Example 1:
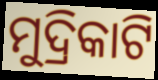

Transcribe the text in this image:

ମୁଦ୍ରିକାଟି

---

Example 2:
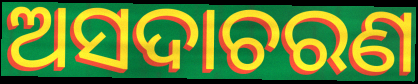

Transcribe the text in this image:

ଅସଦାଚରଣ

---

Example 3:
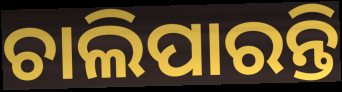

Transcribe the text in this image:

ଚାଲିପାରନ୍ତି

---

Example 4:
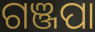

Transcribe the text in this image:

ଗଞ୍ଜପା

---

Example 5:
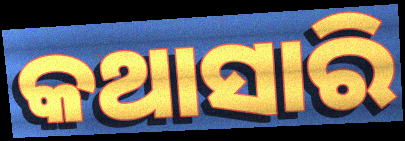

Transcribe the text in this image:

କଥାସାରି